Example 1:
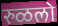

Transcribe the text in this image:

रुळलो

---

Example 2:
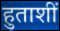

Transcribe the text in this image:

हुताशीं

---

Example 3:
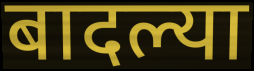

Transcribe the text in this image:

बादल्या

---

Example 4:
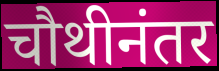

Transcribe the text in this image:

चौथीनंतर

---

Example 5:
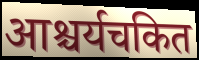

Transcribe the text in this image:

आश्चर्यचकित